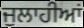
ਜੁਲਾਹੀਆਂ